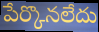
పేర్కొనలేదు